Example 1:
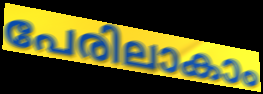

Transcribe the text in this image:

പേരിലാകാം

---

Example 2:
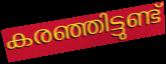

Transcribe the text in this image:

കരഞ്ഞിട്ടുണ്ട്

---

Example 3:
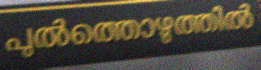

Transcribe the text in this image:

പുൽത്തൊഴുത്തിൽ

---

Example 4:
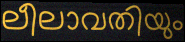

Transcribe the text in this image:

ലീലാവതിയും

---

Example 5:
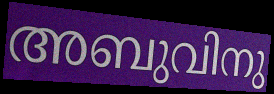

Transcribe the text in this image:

അബുവിനു